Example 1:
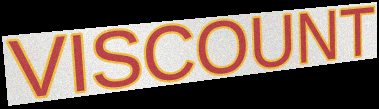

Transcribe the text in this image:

VISCOUNT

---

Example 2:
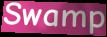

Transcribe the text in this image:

Swamp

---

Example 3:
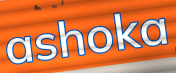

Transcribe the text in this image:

ashoka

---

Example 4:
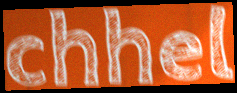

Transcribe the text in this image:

chhel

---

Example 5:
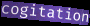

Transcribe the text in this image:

cogitation